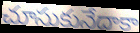
చూసుకునేదాకా